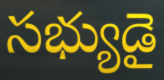
సభ్యుడై